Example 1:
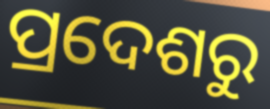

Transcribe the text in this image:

ପ୍ରଦେଶରୁ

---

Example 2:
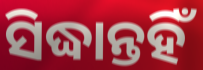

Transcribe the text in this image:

ସିଦ୍ଧାନ୍ତହିଁ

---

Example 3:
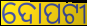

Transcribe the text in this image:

ଦୋପଟୀ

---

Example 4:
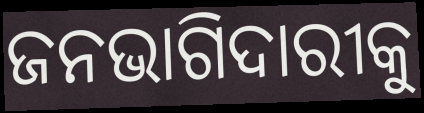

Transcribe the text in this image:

ଜନଭାଗିଦାରୀକୁ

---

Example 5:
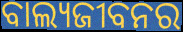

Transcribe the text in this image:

ବାଲ୍ୟଜୀବନର